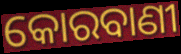
କୋରବାଣୀ